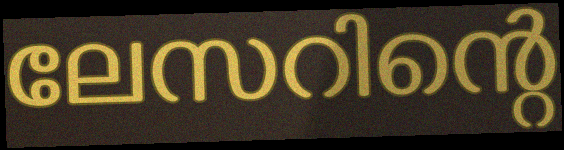
ലേസറിന്റെ